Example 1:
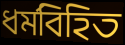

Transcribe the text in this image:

ধর্মবিহিত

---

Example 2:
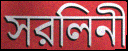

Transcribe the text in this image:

সরলিনী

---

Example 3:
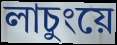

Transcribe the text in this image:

লাচুংয়ে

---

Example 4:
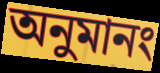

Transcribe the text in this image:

অনুমানং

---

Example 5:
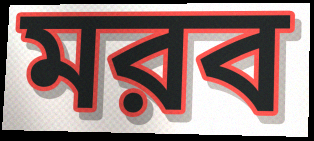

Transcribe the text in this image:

মরব